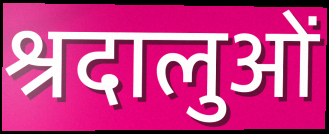
श्रदालुओं